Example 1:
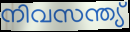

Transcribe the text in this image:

നിവസന്ത്യ്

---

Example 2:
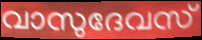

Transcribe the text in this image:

വാസുദേവസ്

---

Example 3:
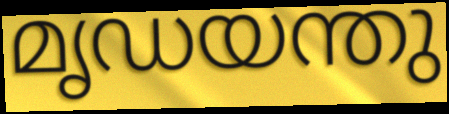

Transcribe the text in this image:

മൃഡയന്തു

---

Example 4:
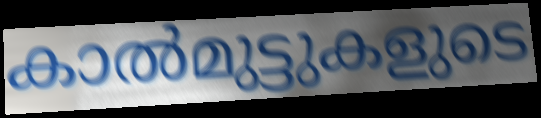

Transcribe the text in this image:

കാൽമുട്ടുകളുടെ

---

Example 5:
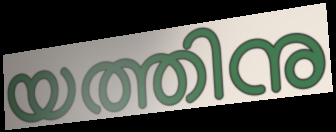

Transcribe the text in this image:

യത്തിനു